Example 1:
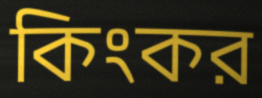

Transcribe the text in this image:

কিংকর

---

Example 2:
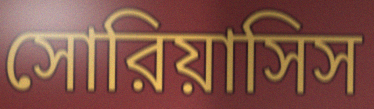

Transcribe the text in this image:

সোরিয়াসিস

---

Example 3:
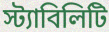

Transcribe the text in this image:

স্ট্যাবিলিটি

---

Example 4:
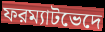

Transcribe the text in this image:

ফরম্যাটভেদে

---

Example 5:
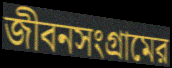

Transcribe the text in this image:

জীবনসংগ্রামের